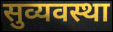
सुव्यवस्था